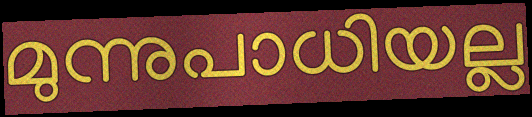
മുന്നുപാധിയല്ല